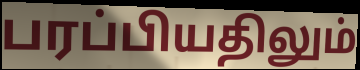
பரப்பியதிலும்